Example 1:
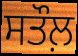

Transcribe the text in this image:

ਸਤੌਲ਼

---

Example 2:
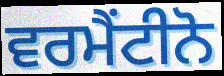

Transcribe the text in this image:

ਵਰਮੈਂਟੀਨੋ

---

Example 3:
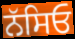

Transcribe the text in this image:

ਨੱਸਿਓ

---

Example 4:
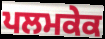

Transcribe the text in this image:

ਪਲਮਕੇਕ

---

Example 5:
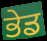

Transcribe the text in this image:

ਭੇਡ